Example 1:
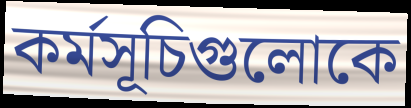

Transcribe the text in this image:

কর্মসূচিগুলোকে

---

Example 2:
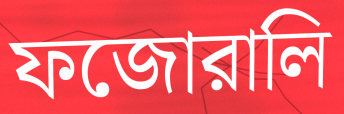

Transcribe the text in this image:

ফজোরালি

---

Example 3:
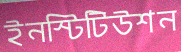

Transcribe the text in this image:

ইনস্টিটিউশন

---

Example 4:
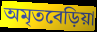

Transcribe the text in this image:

অমৃতবেড়িয়া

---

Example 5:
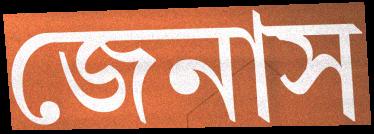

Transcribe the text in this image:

জেনাস